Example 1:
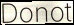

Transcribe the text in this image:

Donot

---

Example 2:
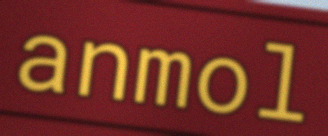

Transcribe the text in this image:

anmol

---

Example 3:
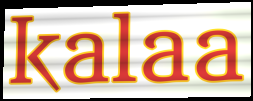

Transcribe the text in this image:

kalaa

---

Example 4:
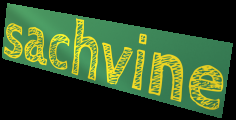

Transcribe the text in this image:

sachvine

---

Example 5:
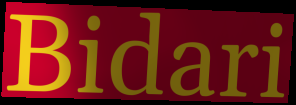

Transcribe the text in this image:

Bidari